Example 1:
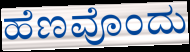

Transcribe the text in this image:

ಹೆಣವೊಂದು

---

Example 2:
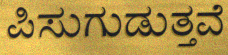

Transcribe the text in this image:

ಪಿಸುಗುಡುತ್ತವೆ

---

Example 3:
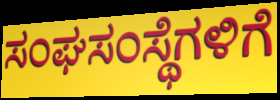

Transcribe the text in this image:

ಸಂಘಸಂಸ್ಥೆಗಳಿಗೆ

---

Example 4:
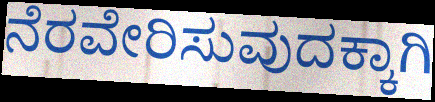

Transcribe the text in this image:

ನೆರವೇರಿಸುವುದಕ್ಕಾಗಿ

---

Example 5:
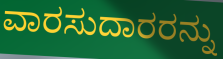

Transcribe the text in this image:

ವಾರಸುದಾರರನ್ನು